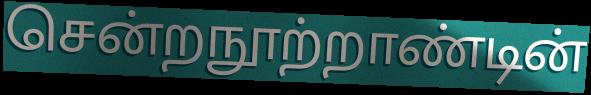
சென்றநூற்றாண்டின்